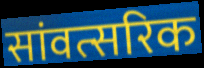
सांवत्सरिक